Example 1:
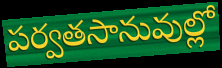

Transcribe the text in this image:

పర్వతసానువుల్లో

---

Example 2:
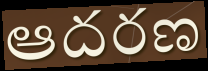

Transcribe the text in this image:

ఆదరణ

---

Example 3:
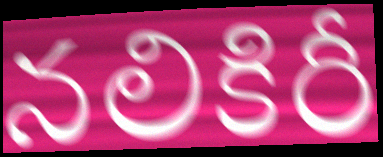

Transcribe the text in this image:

నలికిరీ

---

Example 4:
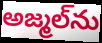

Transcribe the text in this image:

అజ్మల్‌ను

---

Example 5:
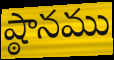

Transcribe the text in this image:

ష్ఠానము